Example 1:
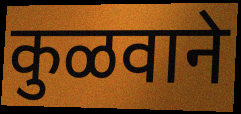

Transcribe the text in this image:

कुळवाने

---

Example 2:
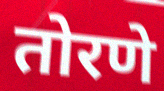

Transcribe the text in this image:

तोरणे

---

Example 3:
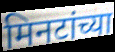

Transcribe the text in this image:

मिनटांच्या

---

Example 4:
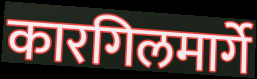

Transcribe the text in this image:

कारगिलमार्गे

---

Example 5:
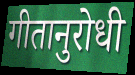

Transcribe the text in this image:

गीतानुरोधी